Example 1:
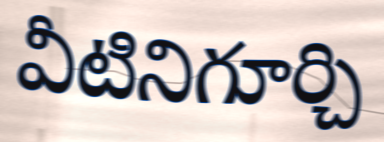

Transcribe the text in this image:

వీటినిగూర్చి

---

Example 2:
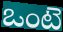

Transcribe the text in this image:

ఒంటె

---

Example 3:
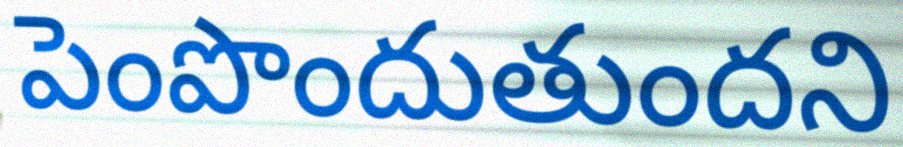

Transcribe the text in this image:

పెంపొందుతుందని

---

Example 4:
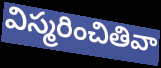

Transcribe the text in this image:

విస్మరించితివా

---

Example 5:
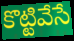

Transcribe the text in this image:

కొట్టివేసే